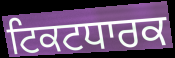
ਟਿਕਟਧਾਰਕ